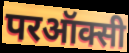
परऑक्सी